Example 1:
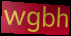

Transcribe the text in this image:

wgbh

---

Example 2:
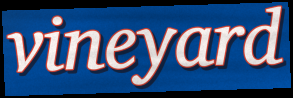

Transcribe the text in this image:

vineyard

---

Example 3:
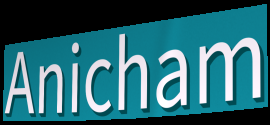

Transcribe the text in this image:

Anicham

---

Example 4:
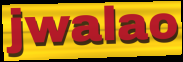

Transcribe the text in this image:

jwalao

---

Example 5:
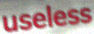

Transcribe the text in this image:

useless